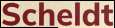
Scheldt